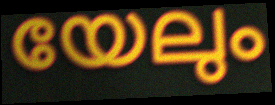
യേലും